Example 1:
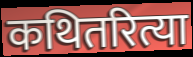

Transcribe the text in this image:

कथितरित्या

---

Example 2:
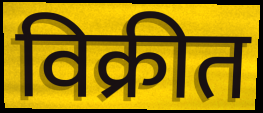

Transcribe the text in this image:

विक्रीत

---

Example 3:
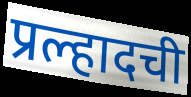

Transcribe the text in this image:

प्रल्हादची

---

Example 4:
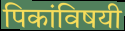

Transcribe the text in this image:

पिकांविषयी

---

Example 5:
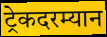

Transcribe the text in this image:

ट्रेकदरम्यान